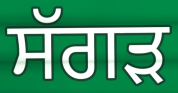
ਸੱਗੜ